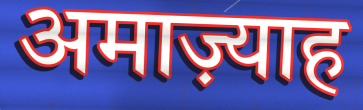
अमाज़्याह